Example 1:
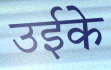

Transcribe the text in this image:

उईके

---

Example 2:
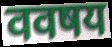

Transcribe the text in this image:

ववषय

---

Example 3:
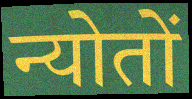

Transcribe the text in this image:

न्योतों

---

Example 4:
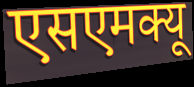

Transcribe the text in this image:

एसएमक्यू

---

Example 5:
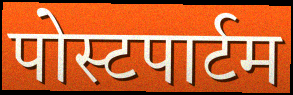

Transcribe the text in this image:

पोस्टपार्टम